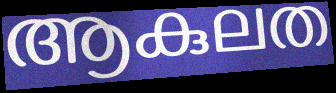
ആകുലത